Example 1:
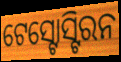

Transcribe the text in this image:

ଟେସ୍ଟୋସ୍ଟିରନ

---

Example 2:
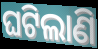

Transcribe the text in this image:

ଘଟିଲାଣି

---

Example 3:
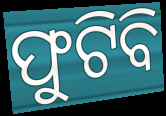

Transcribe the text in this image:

ଫୁଟିବି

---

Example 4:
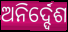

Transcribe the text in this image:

ଅନିର୍ଦ୍ଦେଶ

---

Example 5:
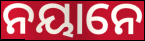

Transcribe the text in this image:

ନୟାନେ